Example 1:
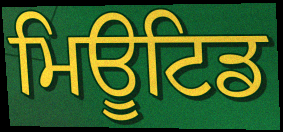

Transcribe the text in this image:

ਮਿਊਟਿਡ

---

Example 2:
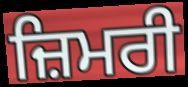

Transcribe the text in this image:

ਜ਼ਿਮਰੀ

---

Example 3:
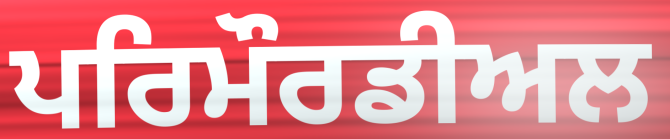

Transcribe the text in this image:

ਪਰਿਮੌਰਡੀਅਲ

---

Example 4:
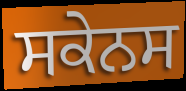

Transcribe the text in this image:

ਸਕੇਨਸ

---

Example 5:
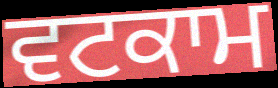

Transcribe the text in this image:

ਵਟਕਾਮ